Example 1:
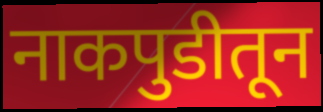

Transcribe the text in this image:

नाकपुडीतून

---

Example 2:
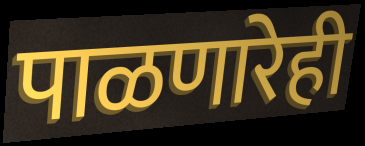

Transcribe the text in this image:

पाळणारेही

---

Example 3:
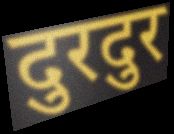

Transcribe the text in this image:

दुरदुर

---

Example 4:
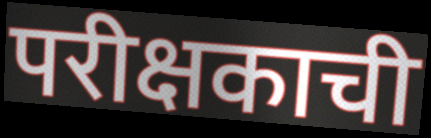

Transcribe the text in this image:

परीक्षकाची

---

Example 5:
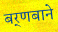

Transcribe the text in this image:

बर्णबाने